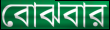
বোঝবার